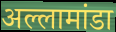
अल्लामांडा